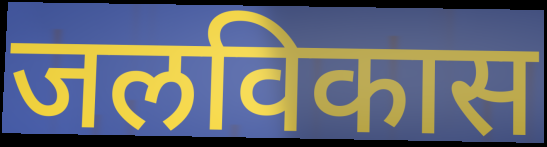
जलविकास